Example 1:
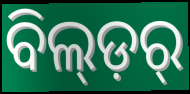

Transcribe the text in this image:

ବିଲ୍ଡ଼ର୍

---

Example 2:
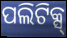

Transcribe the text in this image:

ପଲିଟିକ୍ସ୍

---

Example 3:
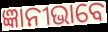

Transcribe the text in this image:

ଜ୍ଞାନୀଭାବେ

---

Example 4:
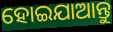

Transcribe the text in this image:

ହୋଇଯାଆନ୍ତୁ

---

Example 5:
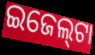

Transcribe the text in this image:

ଇଜେଲ୍‍ଟା